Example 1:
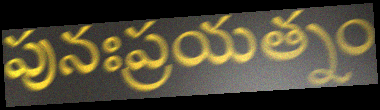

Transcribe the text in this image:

పునఃప్రయత్నం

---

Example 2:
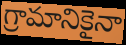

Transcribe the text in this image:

గ్రామానికైనా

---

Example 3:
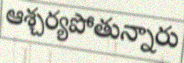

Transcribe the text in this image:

ఆశ్చర్యపోతున్నారు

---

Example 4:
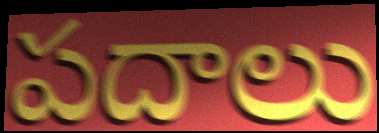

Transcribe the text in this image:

పదాలు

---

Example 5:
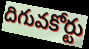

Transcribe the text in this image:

దిగువకోర్టు